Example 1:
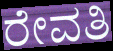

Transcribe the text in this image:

ರೇವತಿ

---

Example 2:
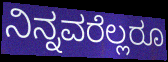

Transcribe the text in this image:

ನಿನ್ನವರೆಲ್ಲರೂ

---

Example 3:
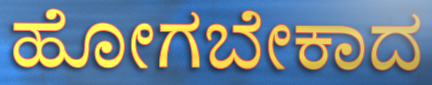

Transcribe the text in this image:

ಹೋಗಬೇಕಾದ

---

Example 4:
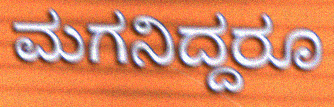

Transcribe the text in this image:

ಮಗನಿದ್ದರೂ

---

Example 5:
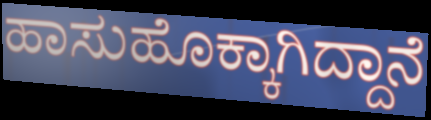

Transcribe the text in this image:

ಹಾಸುಹೊಕ್ಕಾಗಿದ್ದಾನೆ